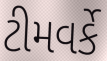
ટીમવર્કે